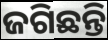
ଜଗିଛନ୍ତି